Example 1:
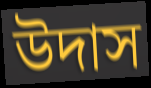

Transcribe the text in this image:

উদাস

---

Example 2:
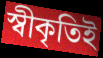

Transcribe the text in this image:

স্বীকৃতিই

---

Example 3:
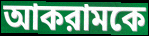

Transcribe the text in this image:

আকরামকে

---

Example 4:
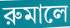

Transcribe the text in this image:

রুমালে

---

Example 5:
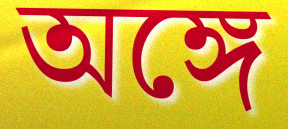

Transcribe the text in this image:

অঙ্গে